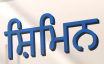
ਸ਼ਿਮਿਨ